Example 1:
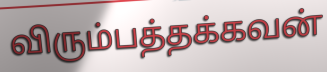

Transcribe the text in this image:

விரும்பத்தக்கவன்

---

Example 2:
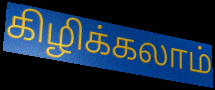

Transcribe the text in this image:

கிழிக்கலாம்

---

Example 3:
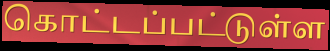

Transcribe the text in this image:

கொட்டப்பட்டுள்ள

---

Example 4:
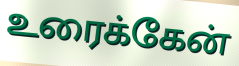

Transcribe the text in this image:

உரைக்கேன்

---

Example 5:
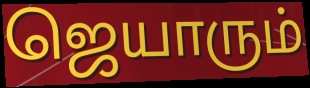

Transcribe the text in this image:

ஜெயாரும்